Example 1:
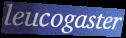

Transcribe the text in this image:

leucogaster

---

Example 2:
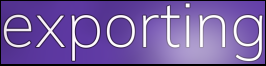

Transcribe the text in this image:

exporting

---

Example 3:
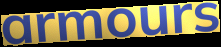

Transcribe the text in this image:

armours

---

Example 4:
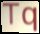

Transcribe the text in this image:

Tq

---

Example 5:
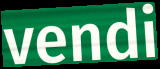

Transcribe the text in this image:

vendi